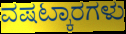
ವಷಟ್ಕಾರಗಳು